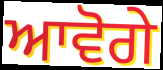
ਆਵੋਗੇ